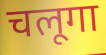
चलूगा